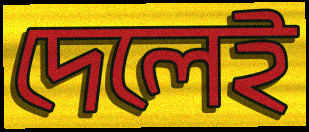
দেলেই